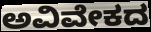
ಅವಿವೇಕದ